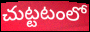
చుట్టటంలో